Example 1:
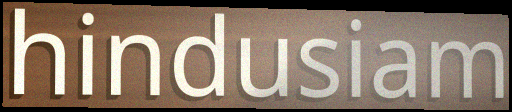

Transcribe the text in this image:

hindusiam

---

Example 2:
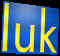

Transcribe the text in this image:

luk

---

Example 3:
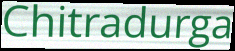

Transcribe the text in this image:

Chitradurga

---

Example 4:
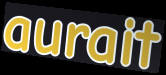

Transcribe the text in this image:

aurait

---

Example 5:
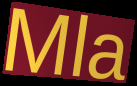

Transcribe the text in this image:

Mla